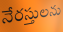
నేరస్తులను